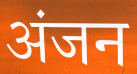
अंजन